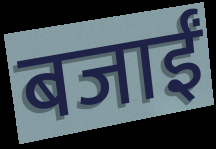
बजाईं